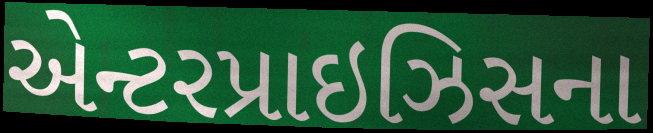
એન્ટરપ્રાઇઝિસના